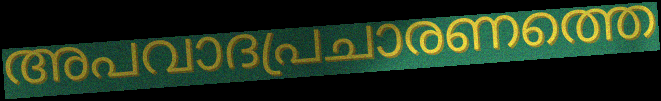
അപവാദപ്രചാരണത്തെ